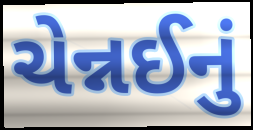
ચેન્નઈનું